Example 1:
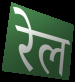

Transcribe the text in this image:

रेल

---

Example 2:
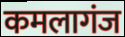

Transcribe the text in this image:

कमलागंज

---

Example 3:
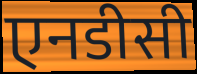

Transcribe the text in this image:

एनडीसी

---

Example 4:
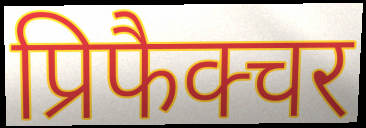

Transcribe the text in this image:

प्रिफैक्चर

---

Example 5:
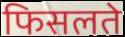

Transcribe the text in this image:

फिसलते